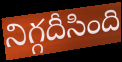
నిగ్గదీసింది